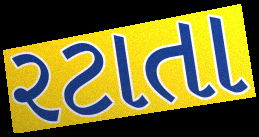
રટાતા